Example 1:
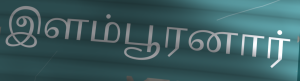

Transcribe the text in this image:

இளம்பூரனார்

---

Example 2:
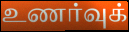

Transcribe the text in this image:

உணர்வுக்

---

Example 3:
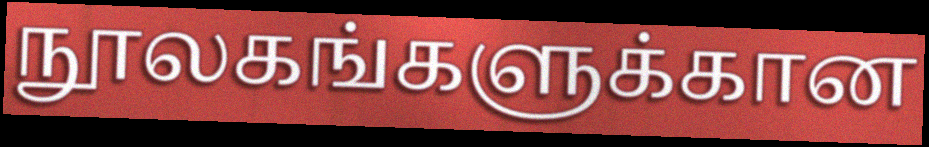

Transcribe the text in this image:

நூலகங்களுக்கான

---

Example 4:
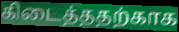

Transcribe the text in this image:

கிடைத்ததற்காக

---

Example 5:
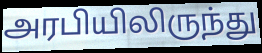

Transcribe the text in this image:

அரபியிலிருந்து